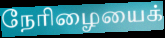
நேரிழையைக்